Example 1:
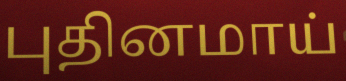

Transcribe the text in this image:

புதினமாய்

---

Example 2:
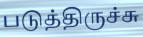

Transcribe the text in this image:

படுத்திருச்சு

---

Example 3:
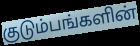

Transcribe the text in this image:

குடும்பங்களின்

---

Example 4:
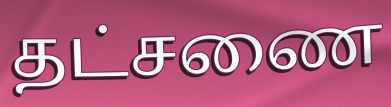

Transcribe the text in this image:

தட்சணை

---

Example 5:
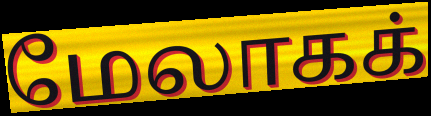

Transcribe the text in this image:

மேலாகக்